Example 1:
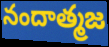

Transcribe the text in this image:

నందాత్మజ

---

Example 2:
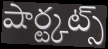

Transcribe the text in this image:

షార్ట్కట్స్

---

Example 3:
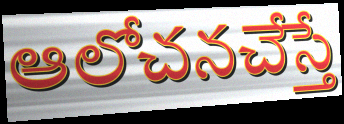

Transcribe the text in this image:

ఆలోచనచేస్తే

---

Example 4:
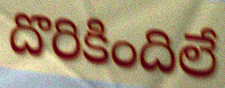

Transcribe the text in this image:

దొరికిందిలే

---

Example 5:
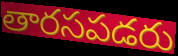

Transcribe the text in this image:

తారసపడరు